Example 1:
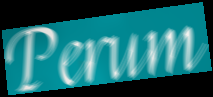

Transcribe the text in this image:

Perum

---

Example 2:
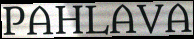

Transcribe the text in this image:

PAHLAVA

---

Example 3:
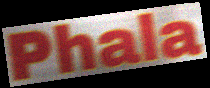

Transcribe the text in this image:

Phala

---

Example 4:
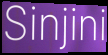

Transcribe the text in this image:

Sinjini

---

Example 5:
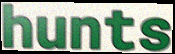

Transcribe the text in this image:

hunts